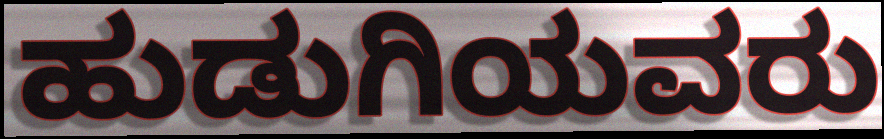
ಹುಡುಗಿಯವರು